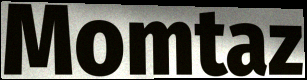
Momtaz